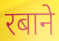
रबाने